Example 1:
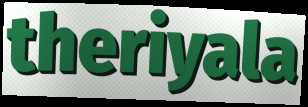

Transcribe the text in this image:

theriyala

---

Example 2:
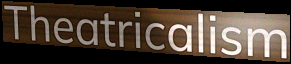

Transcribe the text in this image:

Theatricalism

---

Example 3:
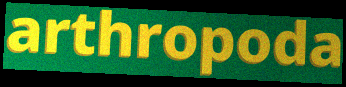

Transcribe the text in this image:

arthropoda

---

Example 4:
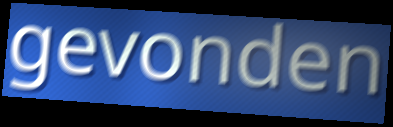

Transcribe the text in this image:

gevonden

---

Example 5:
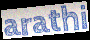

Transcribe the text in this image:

arathi